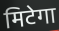
मिटेगा